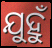
ଯୁହୁଁ